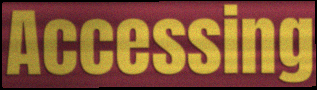
Accessing